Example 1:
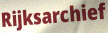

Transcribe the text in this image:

Rijksarchief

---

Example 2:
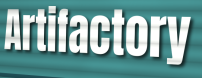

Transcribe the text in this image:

Artifactory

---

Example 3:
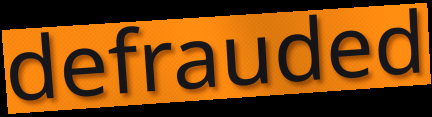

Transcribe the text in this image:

defrauded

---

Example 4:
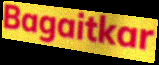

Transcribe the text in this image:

Bagaitkar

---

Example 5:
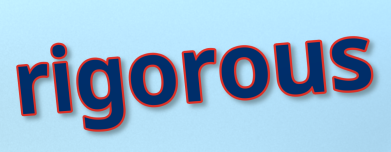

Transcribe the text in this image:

rigorous